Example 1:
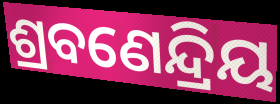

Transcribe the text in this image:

ଶ୍ରବଣେନ୍ଦ୍ରିୟ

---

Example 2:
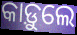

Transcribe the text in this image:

କାଡ଼ୁଲେ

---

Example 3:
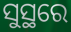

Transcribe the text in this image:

ସୁସ୍ଥରେ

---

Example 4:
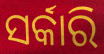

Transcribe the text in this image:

ସର୍କାରି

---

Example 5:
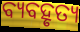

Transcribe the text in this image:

ବ୍ୟବହୃତ୍ୟ